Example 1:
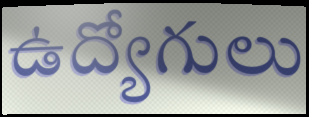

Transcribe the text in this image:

ఉద్యోగులు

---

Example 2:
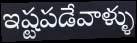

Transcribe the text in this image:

ఇష్టపడేవాళ్ళు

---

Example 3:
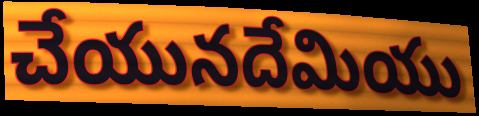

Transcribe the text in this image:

చేయునదేమియు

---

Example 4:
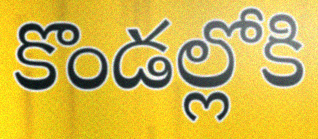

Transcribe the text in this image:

కొండల్లోకి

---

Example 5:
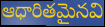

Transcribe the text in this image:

ఆధారితమైనవి